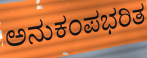
ಅನುಕಂಪಭರಿತ